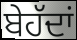
ਬੇਹੱਦਾਂ